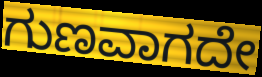
ಗುಣವಾಗದೇ